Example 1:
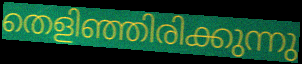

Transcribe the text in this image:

തെളിഞ്ഞിരിക്കുന്നു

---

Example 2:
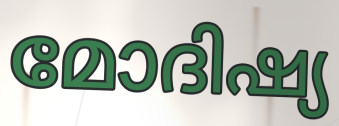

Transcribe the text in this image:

മോദിഷ്യ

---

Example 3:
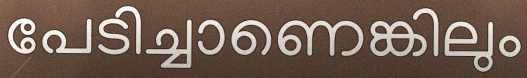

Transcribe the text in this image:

പേടിച്ചാണെങ്കിലും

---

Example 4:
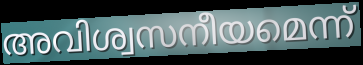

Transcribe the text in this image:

അവിശ്വസനീയമെന്ന്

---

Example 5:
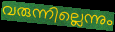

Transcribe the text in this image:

വരുന്നില്ലെന്നും